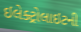
ઇલેક્ટ્રોલાઇટની